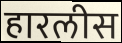
हारलीस